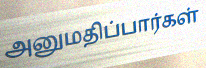
அனுமதிப்பார்கள்